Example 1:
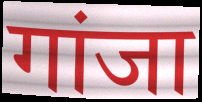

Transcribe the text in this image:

गांजा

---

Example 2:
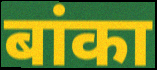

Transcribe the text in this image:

बांका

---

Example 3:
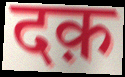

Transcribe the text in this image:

दक़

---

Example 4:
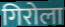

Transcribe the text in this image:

गिरोला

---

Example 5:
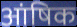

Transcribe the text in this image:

आंषिक